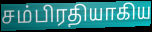
சம்பிரதியாகிய